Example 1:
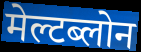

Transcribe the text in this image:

मेल्टब्लोन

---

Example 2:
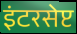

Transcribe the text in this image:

इंटरसेप्ट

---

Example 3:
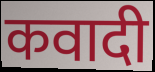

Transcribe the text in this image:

कवादी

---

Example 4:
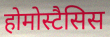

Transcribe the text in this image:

होमोस्टैसिस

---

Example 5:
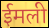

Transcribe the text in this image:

ईमली